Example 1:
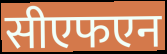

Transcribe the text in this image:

सीएफएन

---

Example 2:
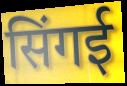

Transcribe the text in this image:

सिंगई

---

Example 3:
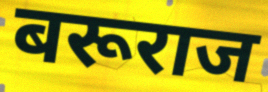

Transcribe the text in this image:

बरूराज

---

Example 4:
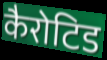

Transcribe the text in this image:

कैरोटिड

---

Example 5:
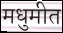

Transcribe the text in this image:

मधुमीत